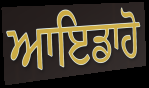
ਆਇਡਾਹੋ